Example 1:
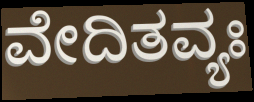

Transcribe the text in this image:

ವೇದಿತವ್ಯಃ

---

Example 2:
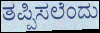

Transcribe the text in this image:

ತಪ್ಪಿಸಲೆಂದು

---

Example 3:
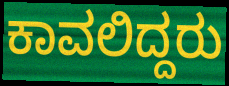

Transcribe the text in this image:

ಕಾವಲಿದ್ದರು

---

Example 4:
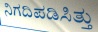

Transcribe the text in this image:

ನಿಗದಿಪಡಿಸಿತ್ತು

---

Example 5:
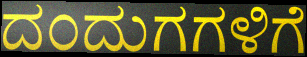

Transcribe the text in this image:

ದಂದುಗಗಳಿಗೆ